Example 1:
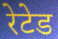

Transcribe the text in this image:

रेटेड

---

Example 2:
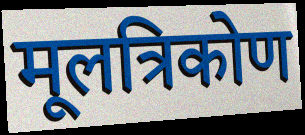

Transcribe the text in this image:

मूलत्रिकोण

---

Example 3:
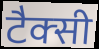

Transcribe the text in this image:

टैक्‍सी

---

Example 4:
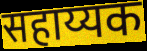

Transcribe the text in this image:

सहाय्यक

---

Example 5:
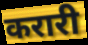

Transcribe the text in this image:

करारी